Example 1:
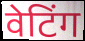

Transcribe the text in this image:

वेटिंग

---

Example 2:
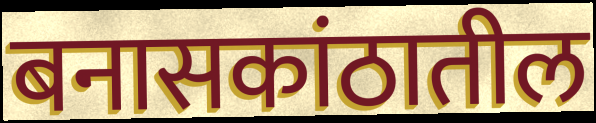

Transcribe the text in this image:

बनासकांठातील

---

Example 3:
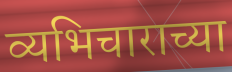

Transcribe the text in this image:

व्यभिचाराच्या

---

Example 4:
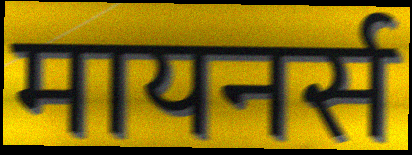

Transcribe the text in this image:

मायनर्स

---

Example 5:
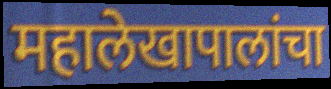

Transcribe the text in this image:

महालेखापालांचा